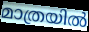
മാത്രയിൽ